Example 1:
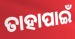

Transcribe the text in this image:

ତାହାପାଇଁ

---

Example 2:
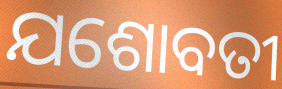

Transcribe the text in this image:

ଯଶୋବତୀ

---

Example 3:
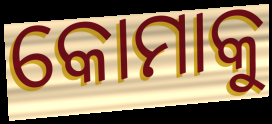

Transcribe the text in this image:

କୋମାକୁ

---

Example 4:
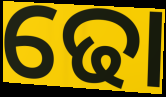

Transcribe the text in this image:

ଢୋ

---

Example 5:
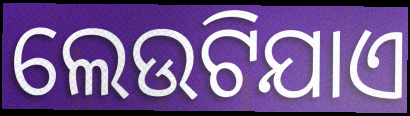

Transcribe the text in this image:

ଲେଉଟିଯାଏ